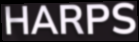
HARPS